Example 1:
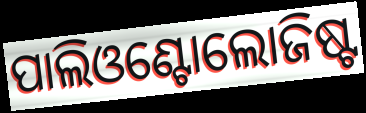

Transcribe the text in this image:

ପାଲିଓଣ୍ଟୋଲୋଜିଷ୍ଟ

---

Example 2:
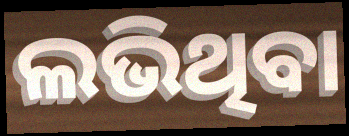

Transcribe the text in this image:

ଲଭିଥିବା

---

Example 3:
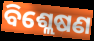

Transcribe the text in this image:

ବିଶ୍ଲେଷଣ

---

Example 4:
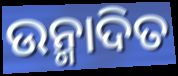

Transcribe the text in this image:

ଉନ୍ମାଦିତ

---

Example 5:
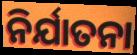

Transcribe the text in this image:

ନିର୍ଯାତନା